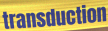
transduction